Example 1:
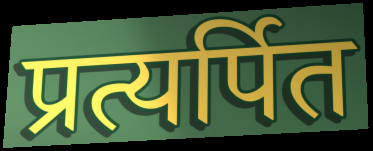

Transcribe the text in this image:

प्रत्यर्पित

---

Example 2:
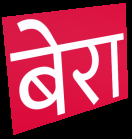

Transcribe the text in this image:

बेरा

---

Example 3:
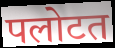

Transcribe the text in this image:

पलोटत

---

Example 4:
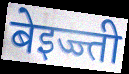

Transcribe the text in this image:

बेइज्ज्ती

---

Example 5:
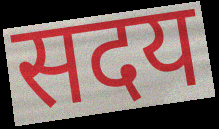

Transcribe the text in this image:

सदय